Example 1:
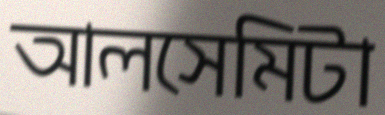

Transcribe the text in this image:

আলসেমিটা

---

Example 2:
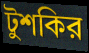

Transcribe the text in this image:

টুশকির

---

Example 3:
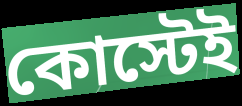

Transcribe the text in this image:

কোস্টেই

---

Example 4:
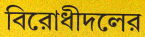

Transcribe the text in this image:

বিরোধীদলের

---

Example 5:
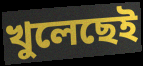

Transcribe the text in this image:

খুলেছেই